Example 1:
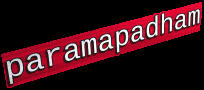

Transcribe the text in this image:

paramapadham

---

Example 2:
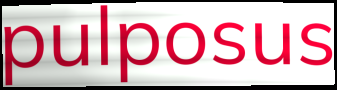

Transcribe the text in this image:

pulposus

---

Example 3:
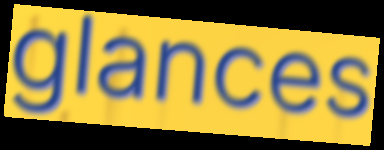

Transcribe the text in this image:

glances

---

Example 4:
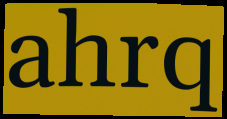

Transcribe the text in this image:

ahrq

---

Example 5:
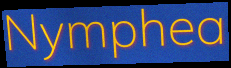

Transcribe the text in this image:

Nymphea